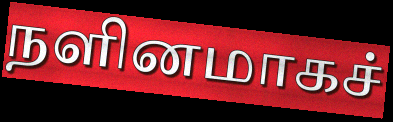
நளினமாகச்